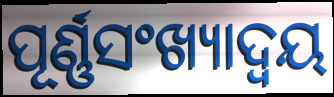
ପୂର୍ଣ୍ଣସଂଖ୍ୟାଦ୍ଵୟ